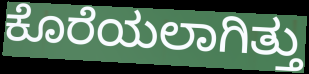
ಕೊರೆಯಲಾಗಿತ್ತು